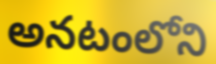
అనటంలోని